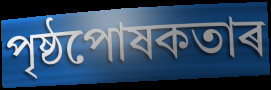
পৃষ্ঠপোষকতাৰ